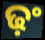
ଢ଼ଂ